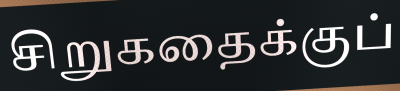
சிறுகதைக்குப்